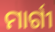
ମାର୍ଗୀ